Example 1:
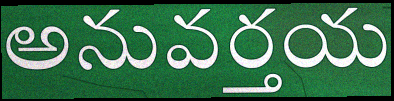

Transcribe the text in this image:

అనువర్తయ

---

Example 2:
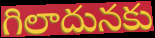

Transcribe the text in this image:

గిలాదునకు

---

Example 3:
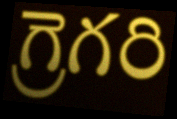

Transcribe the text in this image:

గ్రెగరి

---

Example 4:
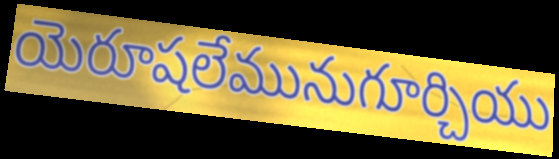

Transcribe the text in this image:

యెరూషలేమునుగూర్చియు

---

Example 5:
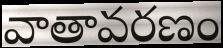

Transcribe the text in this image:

వాతావరణం